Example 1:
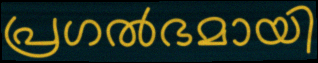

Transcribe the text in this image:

പ്രഗൽഭമായി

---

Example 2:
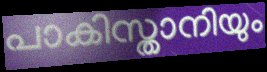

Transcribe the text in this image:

പാകിസ്താനിയും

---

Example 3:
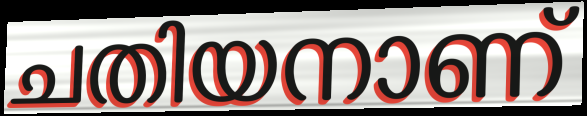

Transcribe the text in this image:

ചതിയനാണ്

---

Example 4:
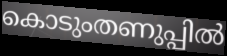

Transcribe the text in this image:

കൊടുംതണുപ്പിൽ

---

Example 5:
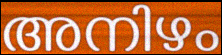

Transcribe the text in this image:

അനിഴം